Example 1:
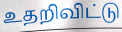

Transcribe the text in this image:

உதறிவிட்டு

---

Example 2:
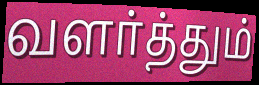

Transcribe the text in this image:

வளர்த்தும்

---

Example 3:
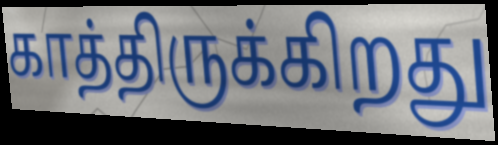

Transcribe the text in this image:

காத்திருக்கிறது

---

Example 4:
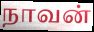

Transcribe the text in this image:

நாவன்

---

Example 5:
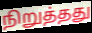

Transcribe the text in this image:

நிறுத்தது